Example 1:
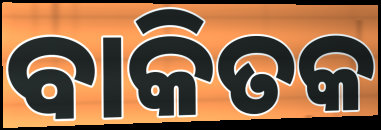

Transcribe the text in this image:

ବାକିତକ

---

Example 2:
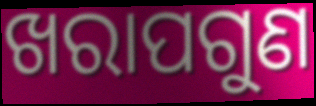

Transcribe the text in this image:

ଖରାପଗୁଣ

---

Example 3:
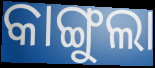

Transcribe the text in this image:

କାଙ୍ଗୁଲା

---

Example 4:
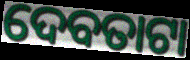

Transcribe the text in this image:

ଦେବତାଟା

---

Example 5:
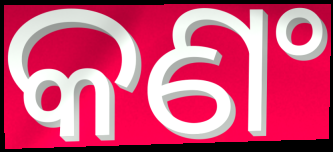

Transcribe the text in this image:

କଣଂ